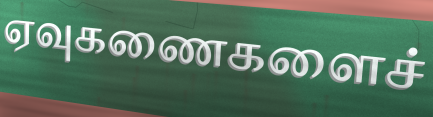
ஏவுகணைகளைச்